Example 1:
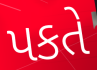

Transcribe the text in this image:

પકતે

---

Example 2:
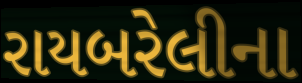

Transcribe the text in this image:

રાયબરેલીના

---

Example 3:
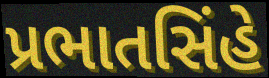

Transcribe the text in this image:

પ્રભાતસિંહે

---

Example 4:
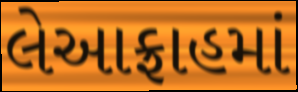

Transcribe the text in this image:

લેઆફ્રાહમાં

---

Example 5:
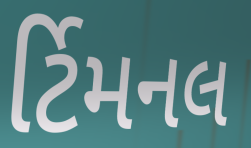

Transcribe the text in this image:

ર્ટિમનલ